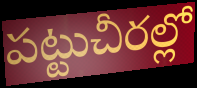
పట్టుచీరల్లో